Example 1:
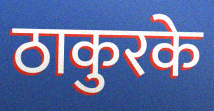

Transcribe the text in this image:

ठाकुरके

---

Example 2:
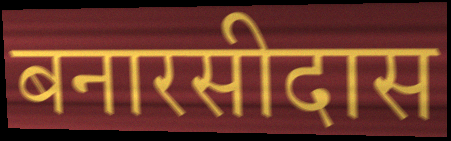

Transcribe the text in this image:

बनारसीदास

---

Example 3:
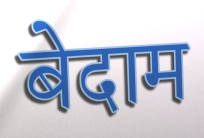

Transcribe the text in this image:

बेदाम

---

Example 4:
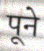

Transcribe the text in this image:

पूने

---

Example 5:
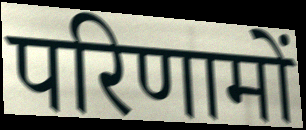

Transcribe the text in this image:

परिणामों